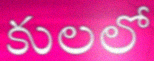
కులలో